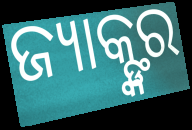
ଜ୍ୟାକ୍ଙ୍କର